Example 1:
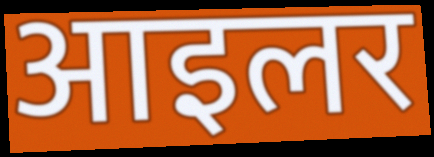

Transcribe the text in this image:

आइलर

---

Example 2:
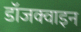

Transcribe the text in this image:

डॉजक्वाइन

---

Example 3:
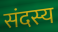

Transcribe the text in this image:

संदस्य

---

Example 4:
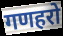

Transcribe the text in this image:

गणहरो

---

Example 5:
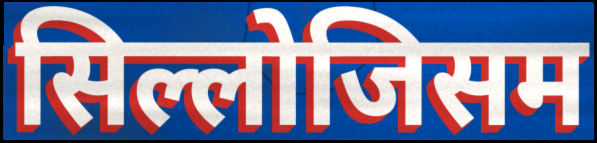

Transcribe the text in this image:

सिल्लोजिसम